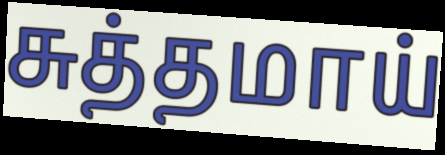
சுத்தமாய்